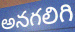
అనగలిగి